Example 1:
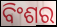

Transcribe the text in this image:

ବିଂଶର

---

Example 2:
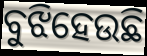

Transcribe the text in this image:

ବୁଝିହେଉଛି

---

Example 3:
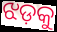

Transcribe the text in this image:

ଝଡ଼କୁ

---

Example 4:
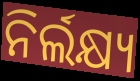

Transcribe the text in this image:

ନିର୍ଲକ୍ଷ୍ୟ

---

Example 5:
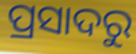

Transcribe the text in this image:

ପ୍ରସାଦରୁ